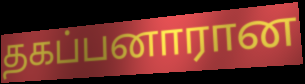
தகப்பனாரான